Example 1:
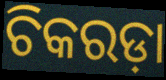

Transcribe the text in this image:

ଚିକରଡ଼ା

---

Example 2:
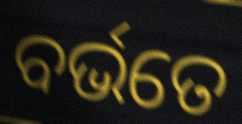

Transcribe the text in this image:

ବର୍ଭତେ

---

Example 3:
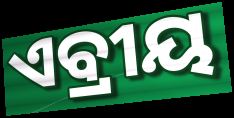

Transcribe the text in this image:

ଏବ୍ରୀୟ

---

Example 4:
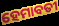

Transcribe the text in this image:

ହେମାବତୀ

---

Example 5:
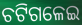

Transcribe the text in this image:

ଚଟିଗଳେଇ